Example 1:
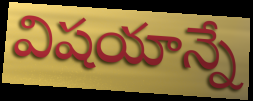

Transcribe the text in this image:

విషయాన్నే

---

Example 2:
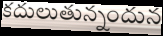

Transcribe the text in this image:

కదులుతున్నందున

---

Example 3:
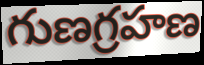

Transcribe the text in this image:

గుణగ్రహణ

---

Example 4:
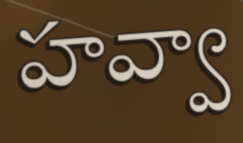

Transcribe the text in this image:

హవ్వా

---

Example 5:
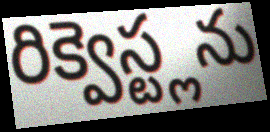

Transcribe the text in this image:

రిక్వెస్ట్లను